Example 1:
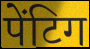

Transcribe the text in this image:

पेंटिग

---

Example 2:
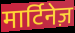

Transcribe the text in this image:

मार्टिनेज़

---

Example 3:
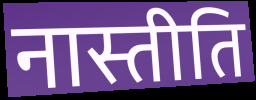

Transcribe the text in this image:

नास्तीति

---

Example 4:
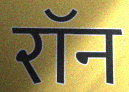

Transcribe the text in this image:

रॉन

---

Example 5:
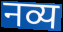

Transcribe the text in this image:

नव्य